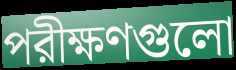
পরীক্ষণগুলো